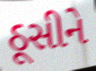
ઠૂસીને